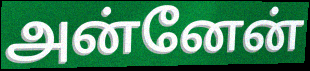
அன்னேன்